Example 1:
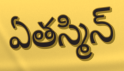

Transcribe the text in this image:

ఏతస్మిన్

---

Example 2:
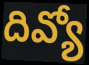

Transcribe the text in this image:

దివ్యో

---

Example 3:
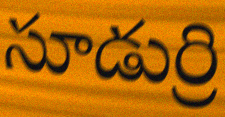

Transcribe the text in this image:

సూడుర్రి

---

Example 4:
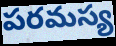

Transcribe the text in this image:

పరమస్య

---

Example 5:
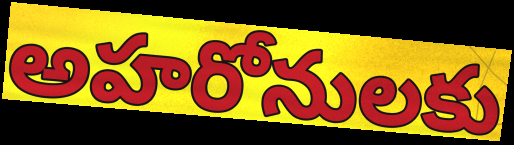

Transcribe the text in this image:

అహరోనులకు